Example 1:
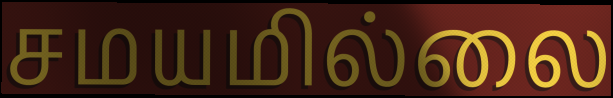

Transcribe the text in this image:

சமயமில்லை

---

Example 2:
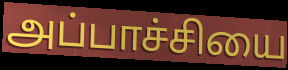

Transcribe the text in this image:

அப்பாச்சியை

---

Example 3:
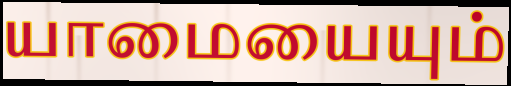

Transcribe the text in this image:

யாமையையும்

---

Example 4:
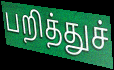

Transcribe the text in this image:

பறித்துச்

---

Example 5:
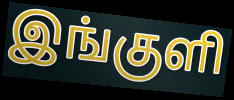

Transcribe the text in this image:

இங்குளி